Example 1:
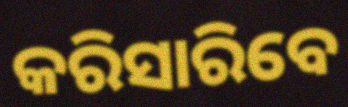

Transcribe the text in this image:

କରିସାରିବେ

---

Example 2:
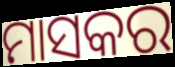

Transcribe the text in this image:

ମାସକର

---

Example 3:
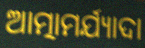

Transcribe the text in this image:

ଆତ୍ମାମର୍ଯ୍ୟାଦା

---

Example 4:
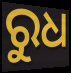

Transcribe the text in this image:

ରୁଧ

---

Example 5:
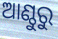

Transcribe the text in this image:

ଆଣ୍ଠୁରୁ